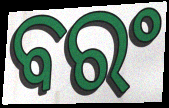
ବରଂ